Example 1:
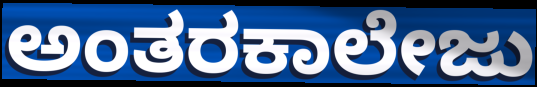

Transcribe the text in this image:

ಅಂತರಕಾಲೇಜು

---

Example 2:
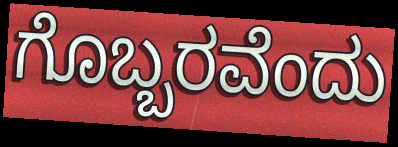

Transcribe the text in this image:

ಗೊಬ್ಬರವೆಂದು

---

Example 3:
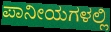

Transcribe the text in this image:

ಪಾನೀಯಗಳಲ್ಲಿ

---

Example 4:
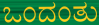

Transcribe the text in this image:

ಒಂದಂತು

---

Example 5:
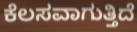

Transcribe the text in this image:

ಕೆಲಸವಾಗುತ್ತಿದೆ